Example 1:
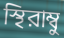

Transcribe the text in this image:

স্থিরাম্বু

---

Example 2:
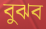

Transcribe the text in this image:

বুঝব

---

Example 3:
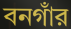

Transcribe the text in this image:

বনগাঁর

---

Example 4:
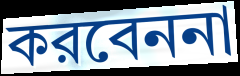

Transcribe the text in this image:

করবেননা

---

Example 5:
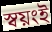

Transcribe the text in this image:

স্বয়ংই